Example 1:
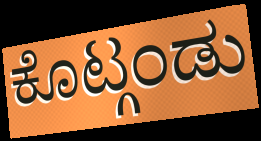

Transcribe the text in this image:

ಕೊಟ್ಗಂಡು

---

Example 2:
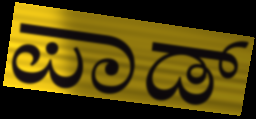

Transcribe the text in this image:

ಪಾಡ್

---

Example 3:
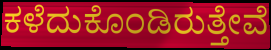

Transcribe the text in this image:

ಕಳೆದುಕೊಂಡಿರುತ್ತೇವೆ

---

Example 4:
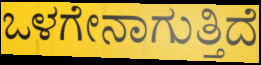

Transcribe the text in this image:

ಒಳಗೇನಾಗುತ್ತಿದೆ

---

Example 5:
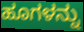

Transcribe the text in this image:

ಹೂಗಳನ್ನು